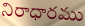
నిరాధారము